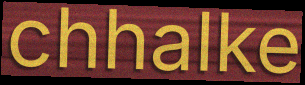
chhalke